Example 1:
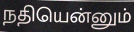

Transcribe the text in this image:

நதியென்னும்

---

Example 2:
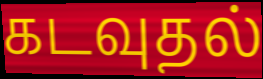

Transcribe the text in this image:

கடவுதல்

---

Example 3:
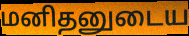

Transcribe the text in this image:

மனிதனுடைய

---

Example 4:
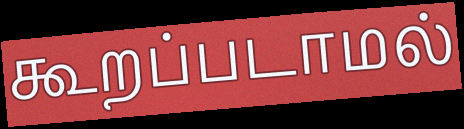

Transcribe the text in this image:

கூறப்படாமல்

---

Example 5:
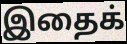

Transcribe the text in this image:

இதைக்